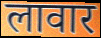
लावार